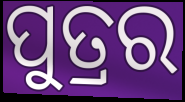
ପୁତ୍ରର